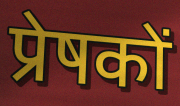
प्रेषकों